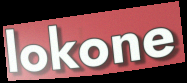
lokone